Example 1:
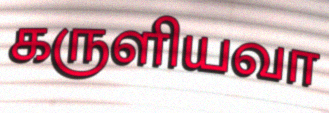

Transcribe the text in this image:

கருளியவா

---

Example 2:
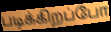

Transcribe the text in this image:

படிக்கிறப்போ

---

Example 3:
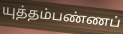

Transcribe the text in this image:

யுத்தம்பண்ணப்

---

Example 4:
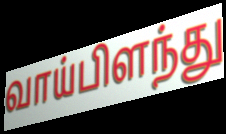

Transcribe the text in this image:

வாய்பிளந்து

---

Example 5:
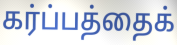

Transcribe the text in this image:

கர்ப்பத்தைக்